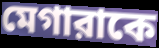
মেগারাকে